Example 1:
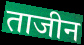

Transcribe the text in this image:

ताजीन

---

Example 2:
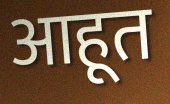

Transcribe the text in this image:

आहूत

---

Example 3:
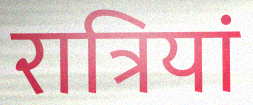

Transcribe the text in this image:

रात्रियां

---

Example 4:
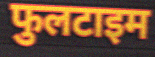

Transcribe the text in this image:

फुलटाइम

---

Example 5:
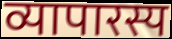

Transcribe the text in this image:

व्यापारस्य